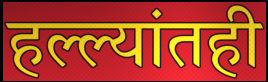
हल्ल्यांतही